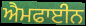
ਐਮਫਾਈਨ